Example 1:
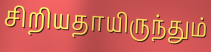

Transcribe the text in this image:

சிறியதாயிருந்தும்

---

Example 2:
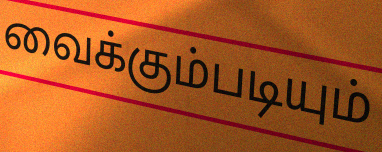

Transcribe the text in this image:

வைக்கும்படியும்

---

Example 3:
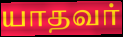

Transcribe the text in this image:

யாதவர்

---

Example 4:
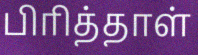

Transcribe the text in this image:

பிரித்தாள்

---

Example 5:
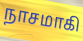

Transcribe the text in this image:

நாசமாகி